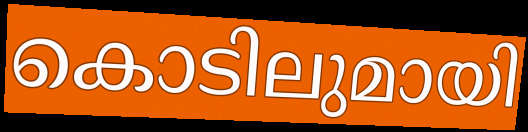
കൊടിലുമായി